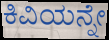
ಕಿವಿಯನ್ನೇ